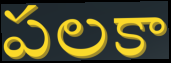
పలకా